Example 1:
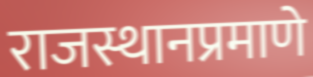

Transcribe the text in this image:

राजस्थानप्रमाणे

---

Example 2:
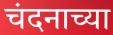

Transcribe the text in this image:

चंदनाच्या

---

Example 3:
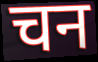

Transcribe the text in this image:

चन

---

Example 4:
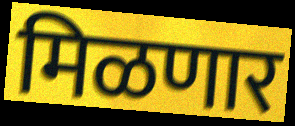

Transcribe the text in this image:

मिळणार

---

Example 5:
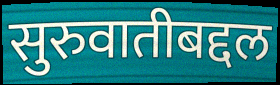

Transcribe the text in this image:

सुरुवातीबद्दल